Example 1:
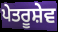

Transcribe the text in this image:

ਪੇਤਰੂਸ਼ੇਵ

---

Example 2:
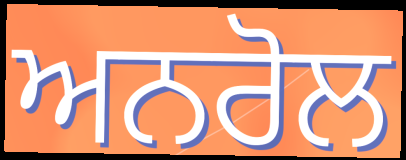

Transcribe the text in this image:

ਅਨਰੋਲ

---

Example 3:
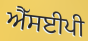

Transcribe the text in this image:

ਐੱਸਈਪੀ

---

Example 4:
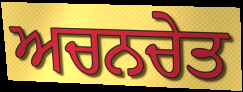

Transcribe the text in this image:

ਅਚਨਚੇਤ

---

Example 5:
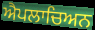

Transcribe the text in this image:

ਐਪਲਾਚਿਅਨ